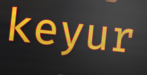
keyur